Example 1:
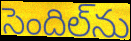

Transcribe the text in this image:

సెందిల్‌ను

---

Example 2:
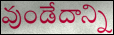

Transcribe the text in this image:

వుండేదాన్ని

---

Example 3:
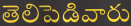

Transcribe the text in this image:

తెలిపెడివారు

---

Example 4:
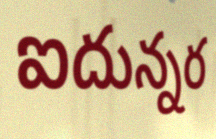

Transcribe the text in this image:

ఐదున్నర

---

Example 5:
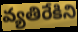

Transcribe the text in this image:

వ్యతిరేకిని